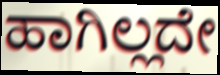
ಹಾಗಿಲ್ಲದೇ